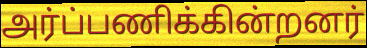
அர்ப்பணிக்கின்றனர்